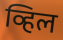
व्हिल